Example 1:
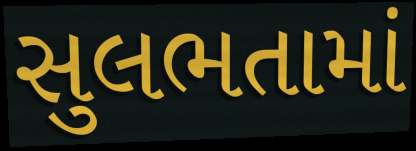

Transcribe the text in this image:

સુલભતામાં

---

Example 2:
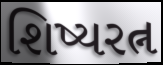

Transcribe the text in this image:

શિષ્યરત્ન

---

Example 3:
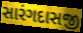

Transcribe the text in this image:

સારંગદાસજી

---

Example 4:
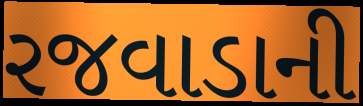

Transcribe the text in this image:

રજવાડાની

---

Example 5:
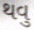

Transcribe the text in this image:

થવુ